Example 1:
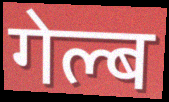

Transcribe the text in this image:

गेल्ब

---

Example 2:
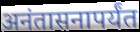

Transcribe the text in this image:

अनंतासनापर्यंत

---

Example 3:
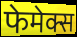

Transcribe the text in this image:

फेमेक्स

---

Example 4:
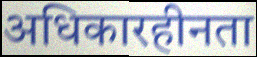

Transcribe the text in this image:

अधिकारहीनता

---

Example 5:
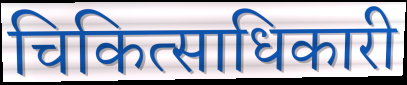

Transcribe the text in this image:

चिकित्साधिकारी